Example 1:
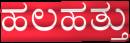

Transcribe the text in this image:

ಹಲಹತ್ತು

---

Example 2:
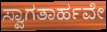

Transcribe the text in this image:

ಸ್ವಾಗತಾರ್ಹವೇ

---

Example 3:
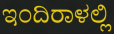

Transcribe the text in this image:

ಇಂದಿರಾಳಲ್ಲಿ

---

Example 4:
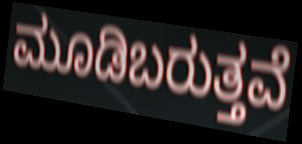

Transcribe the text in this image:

ಮೂಡಿಬರುತ್ತವೆ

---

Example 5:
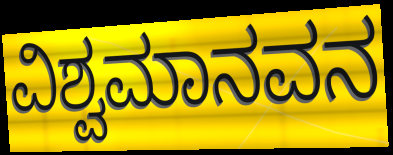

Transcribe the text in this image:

ವಿಶ್ವಮಾನವನ